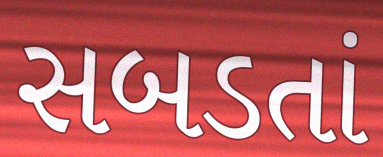
સબડતાં